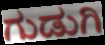
ಗುಡುಗಿ